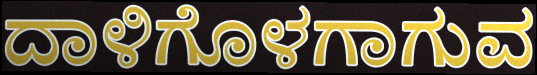
ದಾಳಿಗೊಳಗಾಗುವ